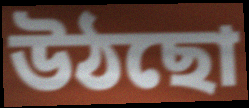
উঠছো